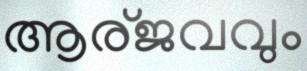
ആര്ജവവും